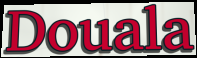
Douala